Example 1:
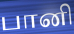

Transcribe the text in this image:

பானி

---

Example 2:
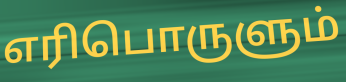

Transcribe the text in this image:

எரிபொருளும்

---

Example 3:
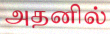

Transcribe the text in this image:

அதனில்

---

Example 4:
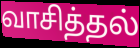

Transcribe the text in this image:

வாசித்தல்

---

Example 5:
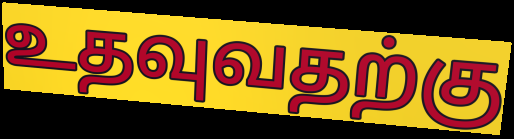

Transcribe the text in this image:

உதவுவதற்கு